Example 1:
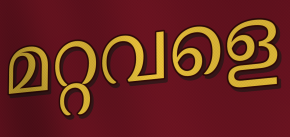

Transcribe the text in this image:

മറ്റവളെ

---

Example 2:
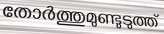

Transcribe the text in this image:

തോർത്തുമുണ്ടുടുത്ത്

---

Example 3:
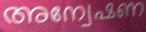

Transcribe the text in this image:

അന്വേഷണ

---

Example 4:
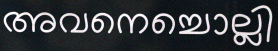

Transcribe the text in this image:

അവനെച്ചൊല്ലി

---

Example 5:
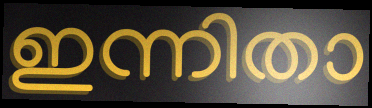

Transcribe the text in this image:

ഇന്നിതാ